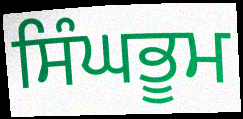
ਸਿੰਘਭੂਮ